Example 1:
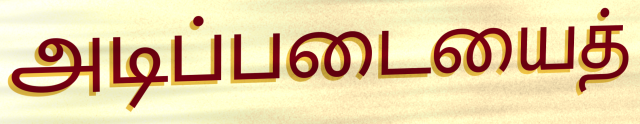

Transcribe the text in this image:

அடிப்படையைத்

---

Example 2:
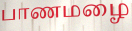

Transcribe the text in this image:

பாணமழை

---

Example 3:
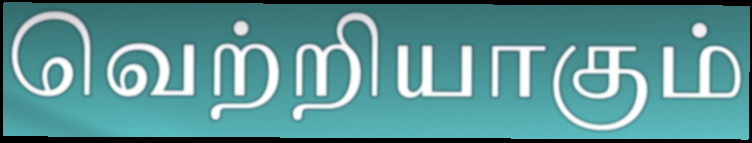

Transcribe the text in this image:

வெற்றியாகும்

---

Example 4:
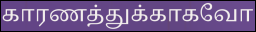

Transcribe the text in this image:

காரணத்துக்காகவோ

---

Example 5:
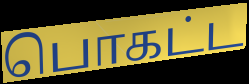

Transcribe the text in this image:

பொகட்ட